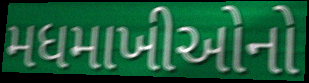
મધમાખીઓનો